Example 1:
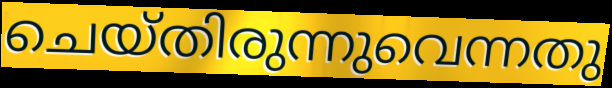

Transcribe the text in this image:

ചെയ്തിരുന്നുവെന്നതു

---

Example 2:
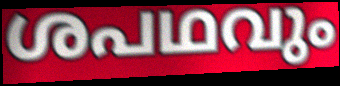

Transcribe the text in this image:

ശപഥവും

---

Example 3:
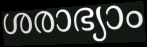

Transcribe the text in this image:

ശരാഭ്യാം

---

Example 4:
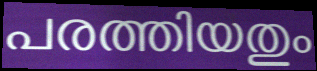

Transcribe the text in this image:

പരത്തിയതും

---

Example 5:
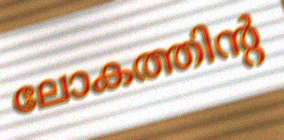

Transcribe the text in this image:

ലോകത്തിന്റ